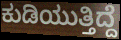
ಕುಡಿಯುತ್ತಿದ್ದೆ